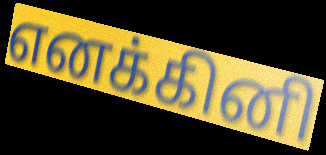
எனக்கினி